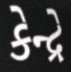
કેન્દ્રે